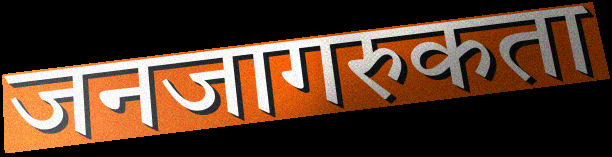
जनजागरुकता